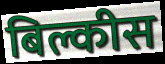
बिल्कीस